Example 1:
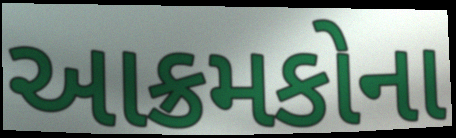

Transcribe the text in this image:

આક્રમકોના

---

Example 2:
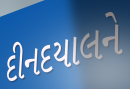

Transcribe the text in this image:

દીનદયાલને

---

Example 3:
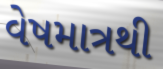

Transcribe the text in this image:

વેષમાત્રથી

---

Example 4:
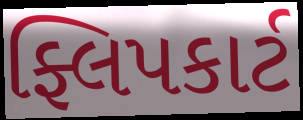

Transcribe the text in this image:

ફ્લિપકાર્ટ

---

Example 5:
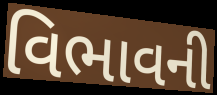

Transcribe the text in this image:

વિભાવની